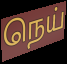
நெய்